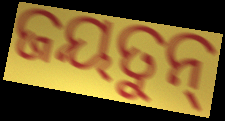
ଜୟତୁନ୍